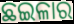
ଛଇଳାର